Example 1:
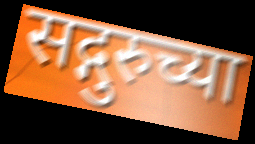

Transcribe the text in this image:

सद्गुरुच्या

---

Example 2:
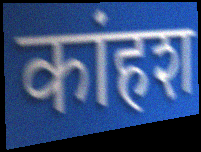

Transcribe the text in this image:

कांहश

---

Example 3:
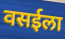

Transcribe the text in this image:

वसईला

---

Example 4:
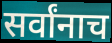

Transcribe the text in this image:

सर्वांनाच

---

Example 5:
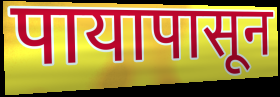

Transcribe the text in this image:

पायापासून